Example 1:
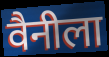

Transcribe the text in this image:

वैनीला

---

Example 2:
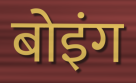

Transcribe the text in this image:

बोइंग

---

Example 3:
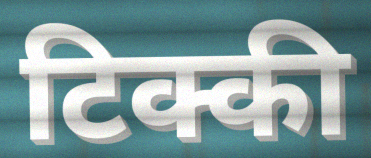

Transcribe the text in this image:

टिक्की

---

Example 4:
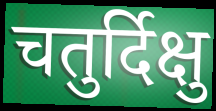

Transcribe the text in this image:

चतुर्दिक्षु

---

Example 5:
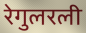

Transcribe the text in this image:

रेगुलरली